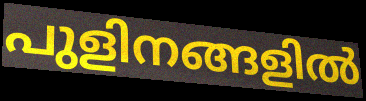
പുളിനങ്ങളിൽ